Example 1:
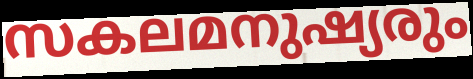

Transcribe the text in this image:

സകലമനുഷ്യരും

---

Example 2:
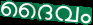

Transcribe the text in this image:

ദൈവം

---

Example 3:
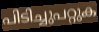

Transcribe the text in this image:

പിടിച്ചുപറ്റുക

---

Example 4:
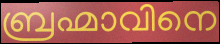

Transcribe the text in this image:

ബ്രഹ്മാവിനെ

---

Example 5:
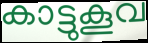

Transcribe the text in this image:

കാട്ടുകൂവ